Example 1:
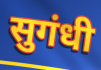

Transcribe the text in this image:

सुगंधी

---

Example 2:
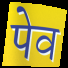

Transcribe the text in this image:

पेव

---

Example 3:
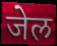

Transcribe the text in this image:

जेल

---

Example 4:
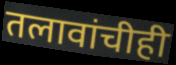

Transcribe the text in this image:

तलावांचीही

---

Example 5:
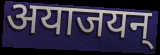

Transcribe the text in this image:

अयाजयन्